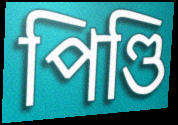
পিণ্ডি